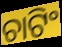
ଚାଟିଂ